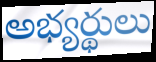
అభ్యర్థులు